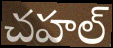
చహల్